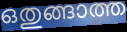
ഒതുങ്ങാത്ത